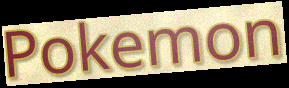
Pokemon